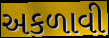
અકળાવી